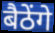
बैठेंगे